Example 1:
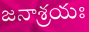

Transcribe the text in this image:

జనాశ్రయః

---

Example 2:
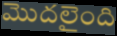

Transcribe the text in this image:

మొదలైంది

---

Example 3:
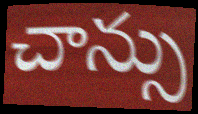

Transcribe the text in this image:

చాన్సు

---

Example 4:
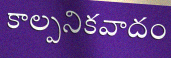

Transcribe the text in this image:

కాల్పనికవాదం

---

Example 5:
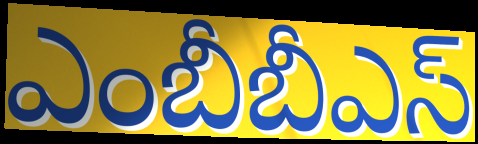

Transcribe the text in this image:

ఎంబీబీఎస్